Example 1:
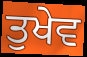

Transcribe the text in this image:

ਤੁਖੇਵ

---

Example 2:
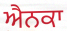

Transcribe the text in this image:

ਐਨਕਾ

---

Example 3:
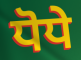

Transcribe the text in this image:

ਧੋਧੇ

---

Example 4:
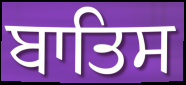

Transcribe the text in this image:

ਬਾਤਿਸ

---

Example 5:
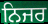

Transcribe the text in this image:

ਨਿਜਰ